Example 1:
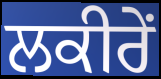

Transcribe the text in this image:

ਲਕੀਰੇਂ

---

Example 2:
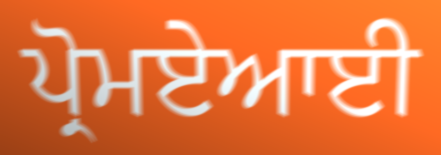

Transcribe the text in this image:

ਪ੍ਰੋਮਏਆਈ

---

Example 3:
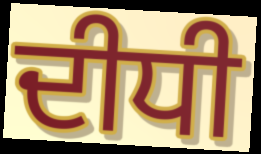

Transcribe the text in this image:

ਦੀਧੀ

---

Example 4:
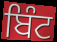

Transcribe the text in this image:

ਬਿੰਟ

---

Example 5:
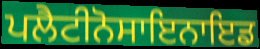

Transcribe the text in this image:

ਪਲੈਟੀਨੋਸਾਇਨਾਇਡ